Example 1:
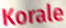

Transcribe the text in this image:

Korale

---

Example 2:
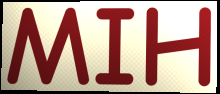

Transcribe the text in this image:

MIH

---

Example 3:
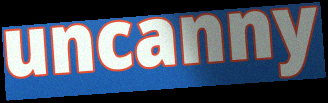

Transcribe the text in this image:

uncanny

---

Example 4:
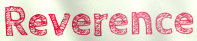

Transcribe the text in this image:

Reverence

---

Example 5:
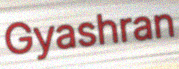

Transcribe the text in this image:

Gyashran